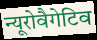
न्यूरोवैगेटिव